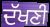
ਦੱਖਣੀ